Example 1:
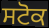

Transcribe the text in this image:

ਸਟੋਕ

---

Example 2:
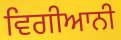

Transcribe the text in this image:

ਵਿਗੀਆਨੀ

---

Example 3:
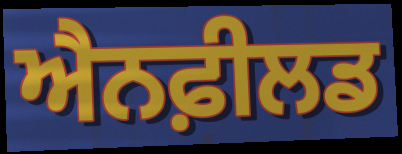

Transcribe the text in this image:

ਐਨਫ਼ੀਲਡ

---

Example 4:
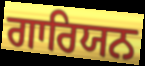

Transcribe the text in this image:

ਗਾਰਿਯਨ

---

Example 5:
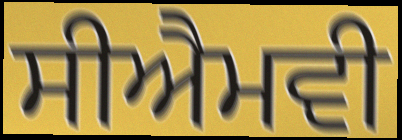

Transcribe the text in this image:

ਸੀਐਮਵੀ